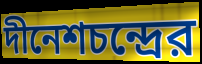
দীনেশচন্দ্রের